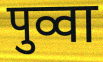
पुव्वा